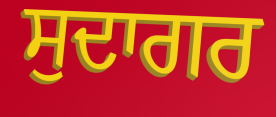
ਸੁਦਾਗਰ